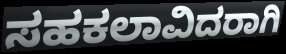
ಸಹಕಲಾವಿದರಾಗಿ